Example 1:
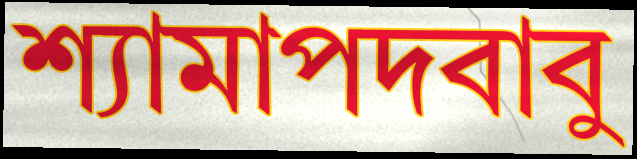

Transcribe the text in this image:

শ্যামাপদবাবু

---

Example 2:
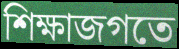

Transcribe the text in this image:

শিক্ষাজগতে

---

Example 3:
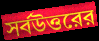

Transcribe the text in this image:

সর্বউত্তরের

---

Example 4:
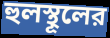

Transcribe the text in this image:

হুলস্থূলের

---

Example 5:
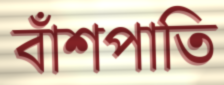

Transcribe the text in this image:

বাঁশপাতি